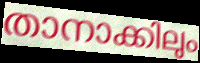
താനാക്കിലും